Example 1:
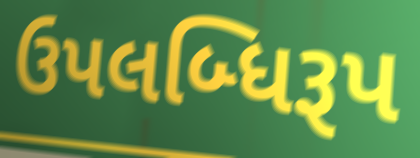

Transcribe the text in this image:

ઉપલબ્ધિરૂપ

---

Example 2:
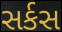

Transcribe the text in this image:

સર્કસ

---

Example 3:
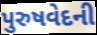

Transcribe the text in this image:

પુરુષવેદની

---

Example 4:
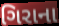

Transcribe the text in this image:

ગિરાના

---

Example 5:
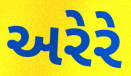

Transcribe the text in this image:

અરેરે